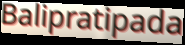
Balipratipada